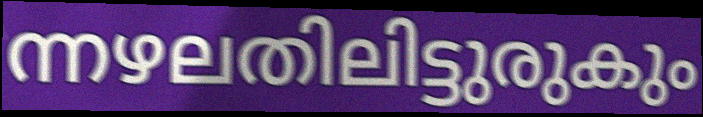
ന്നഴലതിലിട്ടുരുകും